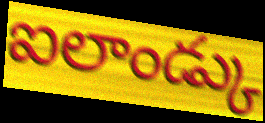
ఐలాండ్కు